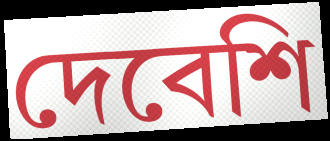
দেবেশি